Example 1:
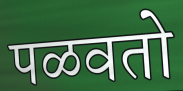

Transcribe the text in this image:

पळवतो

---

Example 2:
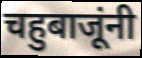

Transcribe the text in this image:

चहुबाजूंनी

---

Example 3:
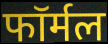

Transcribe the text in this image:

फॉर्मल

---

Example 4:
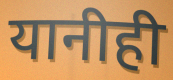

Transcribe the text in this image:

यानीही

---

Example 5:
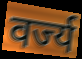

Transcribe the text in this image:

वर्ज्य